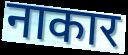
नाकार